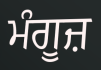
ਮੰਗੂਜ਼